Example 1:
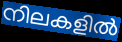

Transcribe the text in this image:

നിലകളിൽ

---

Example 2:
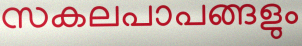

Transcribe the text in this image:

സകലപാപങ്ങളും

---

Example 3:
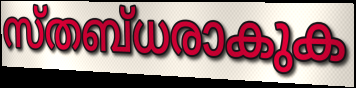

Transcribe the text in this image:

സ്തബ്ധരാകുക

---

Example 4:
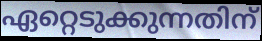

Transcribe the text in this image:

ഏറ്റെടുക്കുന്നതിന്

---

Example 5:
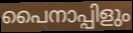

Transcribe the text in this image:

പൈനാപ്പിളും